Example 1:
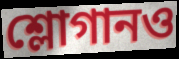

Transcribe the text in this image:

শ্লোগানও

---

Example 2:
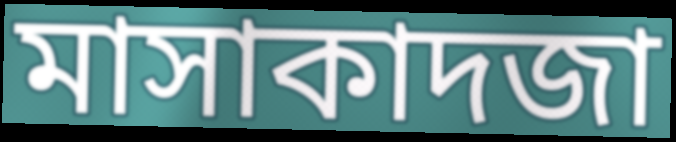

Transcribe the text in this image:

মাসাকাদজা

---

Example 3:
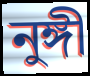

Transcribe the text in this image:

নুঙ্গী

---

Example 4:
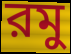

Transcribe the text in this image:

রমু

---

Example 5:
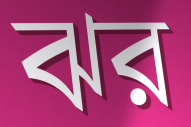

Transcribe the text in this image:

ঝর